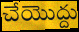
చేయొద్దు